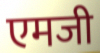
एमजी